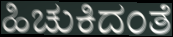
ಹಿಚುಕಿದಂತೆ